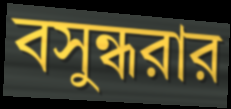
বসুন্ধরার